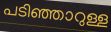
പടിഞ്ഞാറുള്ള